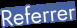
Referrer